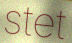
stet